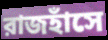
রাজহাঁসে